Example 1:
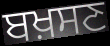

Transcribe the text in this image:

ਬਖ਼ਸਣ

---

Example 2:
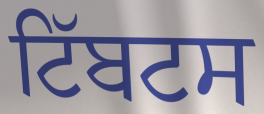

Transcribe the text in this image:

ਟਿੱਬਟਸ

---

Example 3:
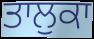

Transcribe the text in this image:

ਤਾਲੁਕਾ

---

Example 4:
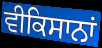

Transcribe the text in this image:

ਵੀਕਿਸਾਨਾਂ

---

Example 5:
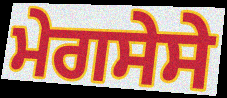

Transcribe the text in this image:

ਮੇਗਸੇਸੇ